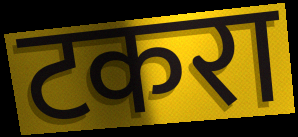
टकरा